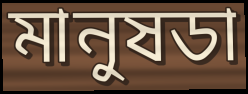
মানুষডা